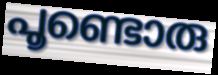
പൂണ്ടൊരു